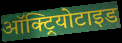
ऑक्ट्रियोटाइड